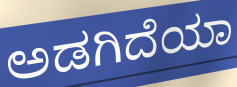
ಅಡಗಿದೆಯಾ